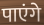
पाएंगे